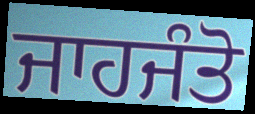
ਜਾਹਜੰਤੋ